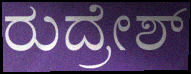
ರುದ್ರೇಶ್